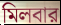
মিলবার